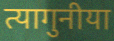
त्यागुनीया